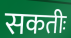
सकतीः